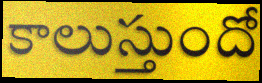
కాలుస్తుందో